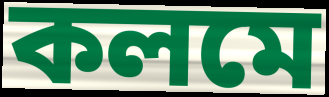
কলমে